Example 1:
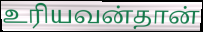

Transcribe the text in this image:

உரியவன்தான்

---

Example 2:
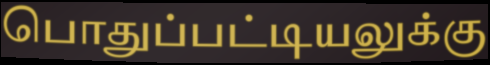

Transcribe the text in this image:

பொதுப்பட்டியலுக்கு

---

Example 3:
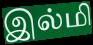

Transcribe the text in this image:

இல்மி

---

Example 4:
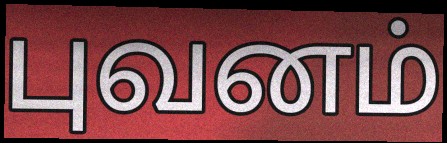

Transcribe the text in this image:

புவனம்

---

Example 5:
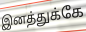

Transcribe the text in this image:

இனத்துக்கே